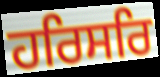
ਹਰਿਸਰਿ